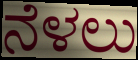
ನೆಳಲು